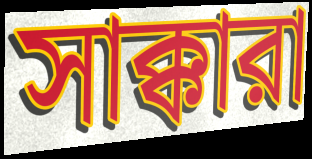
সাক্কারা